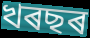
খৰছৰ